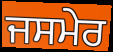
ਜਸਮੇਰ